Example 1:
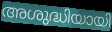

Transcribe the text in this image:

അശുദ്ധിയായി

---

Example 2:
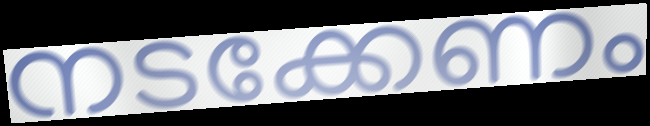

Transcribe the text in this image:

നടക്കേണം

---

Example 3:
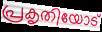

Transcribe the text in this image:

പ്രകൃതിയോട്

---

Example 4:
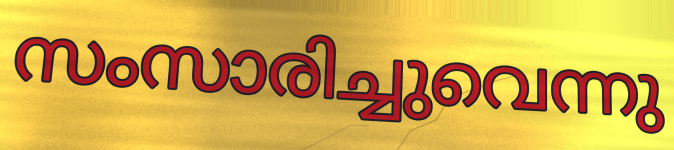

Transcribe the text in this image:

സംസാരിച്ചുവെന്നു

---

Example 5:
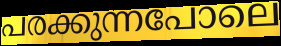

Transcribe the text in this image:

പരക്കുന്നപോലെ